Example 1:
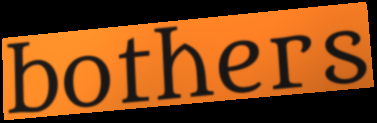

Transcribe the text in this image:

bothers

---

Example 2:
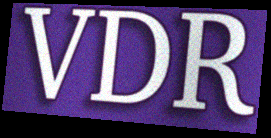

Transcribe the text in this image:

VDR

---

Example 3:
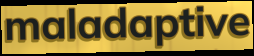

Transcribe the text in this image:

maladaptive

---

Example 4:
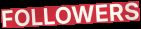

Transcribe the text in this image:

FOLLOWERS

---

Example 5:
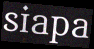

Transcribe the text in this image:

siapa